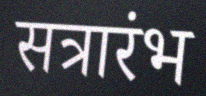
सत्रारंभ